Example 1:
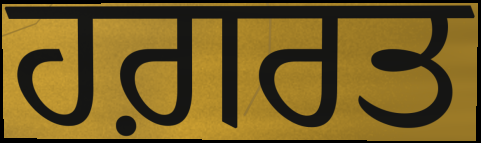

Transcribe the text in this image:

ਹਗ਼ਰਤ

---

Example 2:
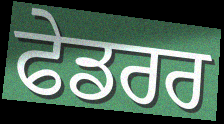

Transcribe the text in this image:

ਫੇਡਰਰ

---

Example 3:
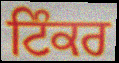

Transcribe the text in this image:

ਟਿੰਕਰ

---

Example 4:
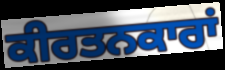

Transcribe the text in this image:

ਕੀਰਤਨਕਾਰਾਂ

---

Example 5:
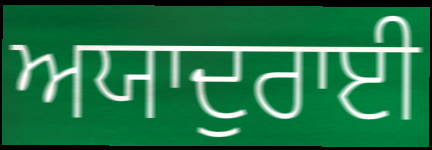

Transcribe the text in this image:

ਅਯਾਦੁਰਾਈ